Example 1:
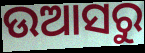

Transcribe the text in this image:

ଉଆସରୁ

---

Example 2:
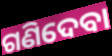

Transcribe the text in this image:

ଗଣିଦେବା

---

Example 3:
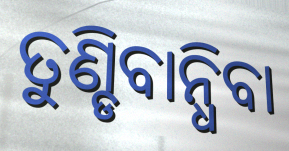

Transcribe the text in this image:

ତୁଣ୍ଡିବାନ୍ଧିବା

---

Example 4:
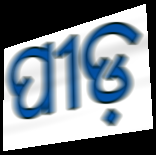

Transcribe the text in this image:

ପୀଡ଼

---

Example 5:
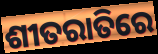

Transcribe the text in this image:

ଶୀତରାତିରେ